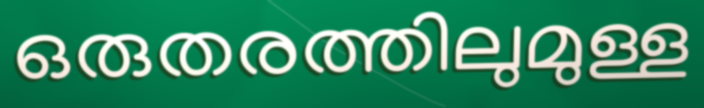
ഒരുതരത്തിലുമുള്ള